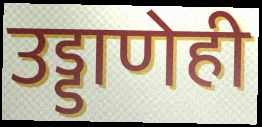
उड्डाणेही